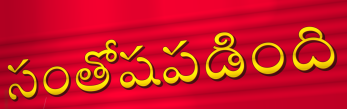
సంతోషపడింది